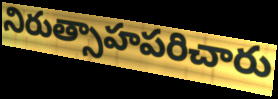
నిరుత్సాహపరిచారు